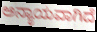
ಅನ್ಯಾಯವಾಗಿದೆ